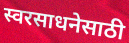
स्वरसाधनेसाठी